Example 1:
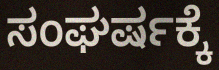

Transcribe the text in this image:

ಸಂಘರ್ಷಕ್ಕೆ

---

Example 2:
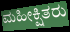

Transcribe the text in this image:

ಮಹೀಕ್ಷಿತರು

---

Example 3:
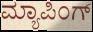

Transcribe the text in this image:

ಮ್ಯಾಪಿಂಗ್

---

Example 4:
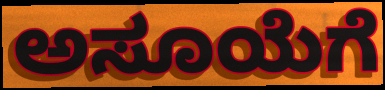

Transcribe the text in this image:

ಅಸೂಯೆಗೆ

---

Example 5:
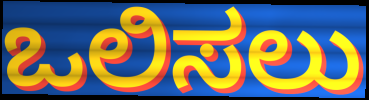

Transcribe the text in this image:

ಒಲಿಸಲು